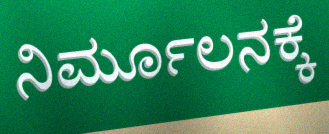
ನಿರ್ಮೂಲನಕ್ಕೆ